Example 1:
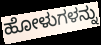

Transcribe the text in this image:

ಹೋಳುಗಳನ್ನು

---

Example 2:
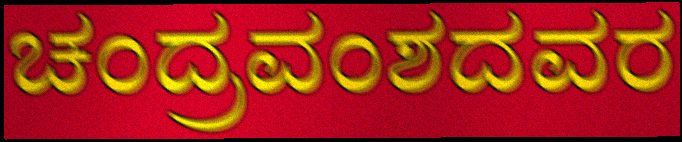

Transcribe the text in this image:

ಚಂದ್ರವಂಶದವರ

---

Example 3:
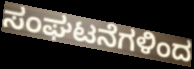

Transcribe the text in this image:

ಸಂಘಟನೆಗಳಿಂದ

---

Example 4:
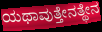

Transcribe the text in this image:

ಯಥಾವುತ್ತೇನತ್ಥೇನ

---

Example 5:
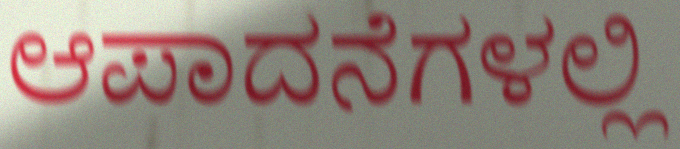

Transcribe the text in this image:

ಆಪಾದನೆಗಳಲ್ಲಿ